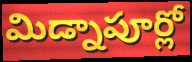
మిడ్నాపూర్లో